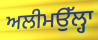
ਅਲੀਮਉੱਲ੍ਹਾ